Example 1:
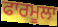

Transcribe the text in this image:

ਫਾਰਮੂਲਾ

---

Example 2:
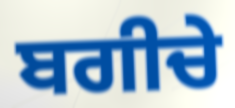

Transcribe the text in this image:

ਬਗੀਚੇ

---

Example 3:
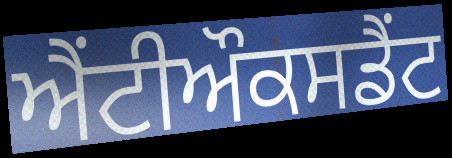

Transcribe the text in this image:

ਐਂਟੀਔਕਸਡੈਂਟ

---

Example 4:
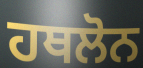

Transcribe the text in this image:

ਹਥਲੋਨ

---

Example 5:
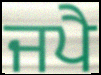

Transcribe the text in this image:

ਜਪੈ